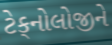
ટેક્‌નોલોજીને